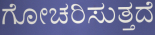
ಗೋಚರಿಸುತ್ತದೆ